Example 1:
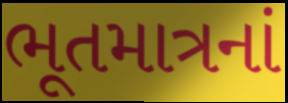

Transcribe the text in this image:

ભૂતમાત્રનાં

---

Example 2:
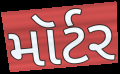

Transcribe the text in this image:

મૉર્ટર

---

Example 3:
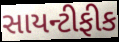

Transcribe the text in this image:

સાયન્ટીફીક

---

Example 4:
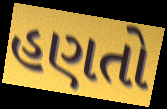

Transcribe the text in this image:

હણતો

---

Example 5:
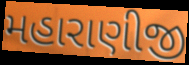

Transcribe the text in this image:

મહારાણીજી